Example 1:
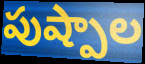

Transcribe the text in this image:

పుష్పాల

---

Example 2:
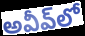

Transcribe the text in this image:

అవీవ్‌లో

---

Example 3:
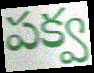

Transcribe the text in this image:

పక్వ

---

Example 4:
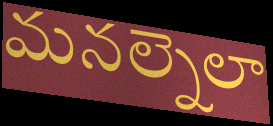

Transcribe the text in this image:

మనల్నెలా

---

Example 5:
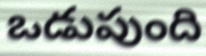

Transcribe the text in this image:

ఒడుపుంది